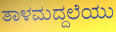
ತಾಳಮದ್ದಲೆಯು